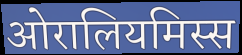
ओरालियमिस्स